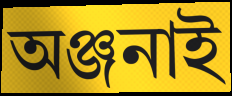
অঞ্জনাই